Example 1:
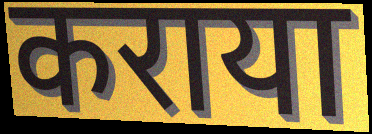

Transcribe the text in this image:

कराया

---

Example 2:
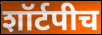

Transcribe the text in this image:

शॉर्टपीच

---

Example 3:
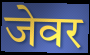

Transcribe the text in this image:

जेवर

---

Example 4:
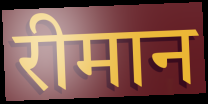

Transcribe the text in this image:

रीमान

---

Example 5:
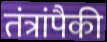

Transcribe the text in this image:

तंत्रांपैकी